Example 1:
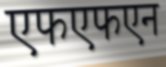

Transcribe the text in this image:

एफएफएन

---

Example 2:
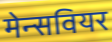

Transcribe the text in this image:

मेन्सवियर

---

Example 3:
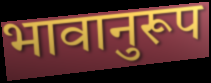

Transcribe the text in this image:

भावानुरूप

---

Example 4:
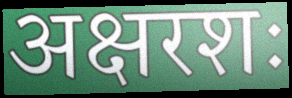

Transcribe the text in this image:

अक्षरशः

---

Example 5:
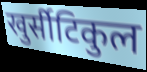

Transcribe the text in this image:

खुर्सीटिकुल